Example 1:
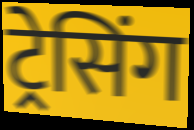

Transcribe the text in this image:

ट्रेसिंग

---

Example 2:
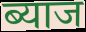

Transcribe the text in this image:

ब्‍याज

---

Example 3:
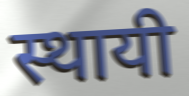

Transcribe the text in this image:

स्‍थायी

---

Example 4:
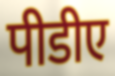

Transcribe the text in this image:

पीडीए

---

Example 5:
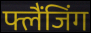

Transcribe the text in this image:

फ्लैंजिंग